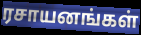
ரசாயனங்கள்